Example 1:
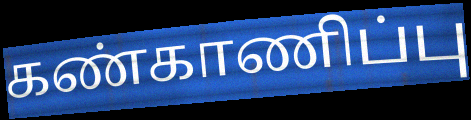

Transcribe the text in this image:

கண்காணிப்பு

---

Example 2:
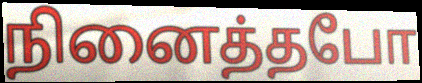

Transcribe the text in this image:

நினைத்தபோ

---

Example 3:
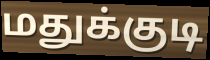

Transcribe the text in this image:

மதுக்குடி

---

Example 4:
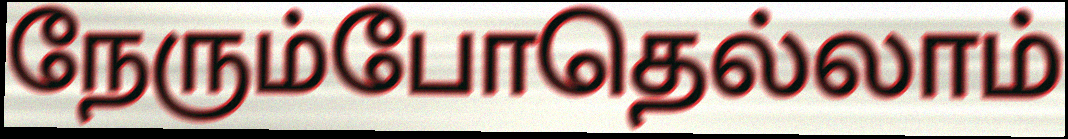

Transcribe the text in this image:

நேரும்போதெல்லாம்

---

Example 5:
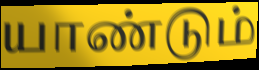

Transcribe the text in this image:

யாண்டும்